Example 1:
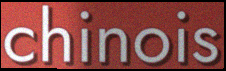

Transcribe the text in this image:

chinois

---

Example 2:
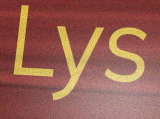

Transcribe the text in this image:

Lys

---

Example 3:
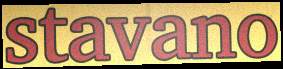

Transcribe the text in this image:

stavano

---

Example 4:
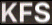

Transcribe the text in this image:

KFS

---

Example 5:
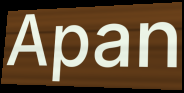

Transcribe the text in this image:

Apan